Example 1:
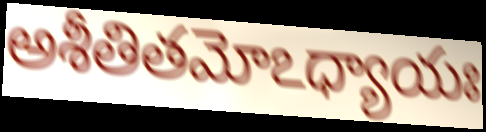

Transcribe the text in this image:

అశీతితమోఽధ్యాయః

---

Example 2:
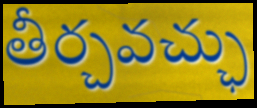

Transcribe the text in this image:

తీర్చవచ్ఛు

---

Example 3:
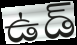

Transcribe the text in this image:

ఉడ్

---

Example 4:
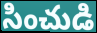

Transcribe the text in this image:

సించుడి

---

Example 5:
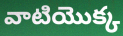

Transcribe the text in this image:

వాటియొక్క